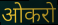
ओकरो